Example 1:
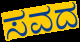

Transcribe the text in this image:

ಸವದ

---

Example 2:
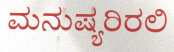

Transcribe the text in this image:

ಮನುಷ್ಯರಿರಲಿ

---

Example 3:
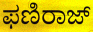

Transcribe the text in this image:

ಫಣಿರಾಜ್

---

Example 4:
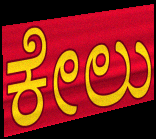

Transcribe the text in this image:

ಕೇಲು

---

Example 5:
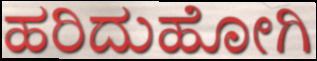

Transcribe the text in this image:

ಹರಿದುಹೋಗಿ